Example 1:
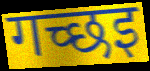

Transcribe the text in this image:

गच्छइ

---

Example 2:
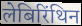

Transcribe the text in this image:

लेबिरिंथिन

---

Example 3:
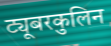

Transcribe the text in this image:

ट्यूबरकुलिन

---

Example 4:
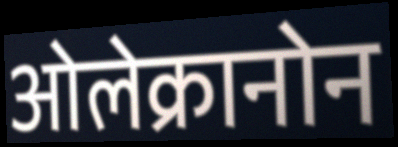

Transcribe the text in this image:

ओलेक्रानोन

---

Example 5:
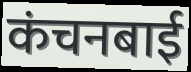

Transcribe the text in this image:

कंचनबाई